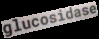
glucosidase